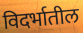
विदर्भातील